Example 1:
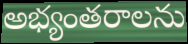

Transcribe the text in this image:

అభ్యంతరాలను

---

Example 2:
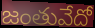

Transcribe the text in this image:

జంతువేదో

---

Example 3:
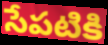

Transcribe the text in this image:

సేపటికి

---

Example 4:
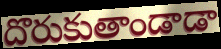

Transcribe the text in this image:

దొరుకుతాండాడా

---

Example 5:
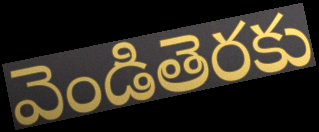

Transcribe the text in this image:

వెండితెరకు